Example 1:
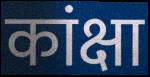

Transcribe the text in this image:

कांक्षा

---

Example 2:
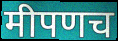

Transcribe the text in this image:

मीपणच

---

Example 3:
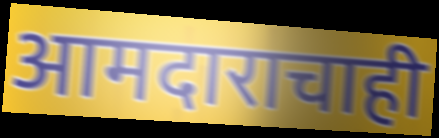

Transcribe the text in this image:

आमदाराचाही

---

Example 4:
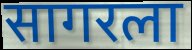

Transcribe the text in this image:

सागरला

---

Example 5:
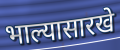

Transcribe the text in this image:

भाल्यासारखे